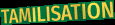
TAMILISATION